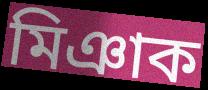
মিঞাক